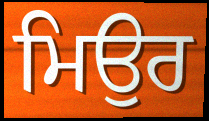
ਮਿਉਰ